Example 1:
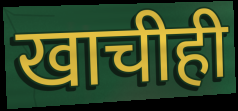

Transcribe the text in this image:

खाचीही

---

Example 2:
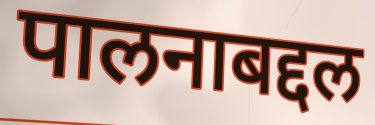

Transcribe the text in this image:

पालनाबद्दल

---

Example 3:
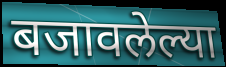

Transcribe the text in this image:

बजावलेल्या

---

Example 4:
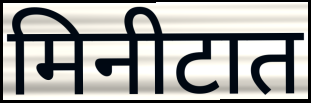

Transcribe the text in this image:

मिनीटात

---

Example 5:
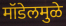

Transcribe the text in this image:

मॉडेलमुळे